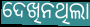
ଦେଖିନଥିଲା